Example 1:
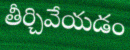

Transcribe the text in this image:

తీర్చివేయడం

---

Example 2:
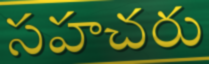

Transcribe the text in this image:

సహచరు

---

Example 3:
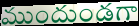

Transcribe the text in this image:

ముందుండగా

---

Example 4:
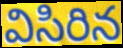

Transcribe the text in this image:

విసిరిన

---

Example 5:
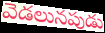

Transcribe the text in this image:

వెడలునపుడు